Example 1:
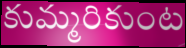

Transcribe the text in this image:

కుమ్మరికుంట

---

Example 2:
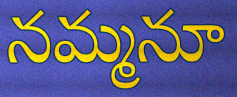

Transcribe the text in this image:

నమ్మనూ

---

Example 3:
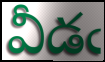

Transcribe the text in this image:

వీడఁ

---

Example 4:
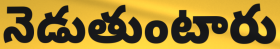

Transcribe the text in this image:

నెడుతుంటారు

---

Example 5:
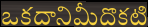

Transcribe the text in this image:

ఒకదానిమీదొకటి